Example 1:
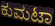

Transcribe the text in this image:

ಕುಮಟಾ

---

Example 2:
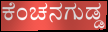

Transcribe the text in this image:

ಕೆಂಚನಗುಡ್ಡ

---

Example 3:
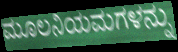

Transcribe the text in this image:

ಮೂಲನಿಯಮಗಳನ್ನು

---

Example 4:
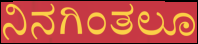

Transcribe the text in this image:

ನಿನಗಿಂತಲೂ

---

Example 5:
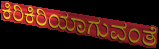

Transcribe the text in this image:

ಕಿರಿಕಿರಿಯಾಗುವಂತೆ